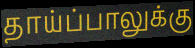
தாய்ப்பாலுக்கு